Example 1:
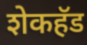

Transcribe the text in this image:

शेकहॅड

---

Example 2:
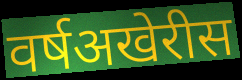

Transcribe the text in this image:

वर्षअखेरीस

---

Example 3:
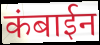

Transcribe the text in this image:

कंबाईन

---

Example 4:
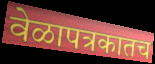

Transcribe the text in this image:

वेळापत्रकातच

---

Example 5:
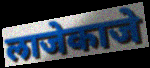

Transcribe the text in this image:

लाजेकाजे